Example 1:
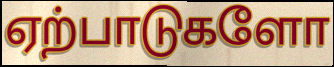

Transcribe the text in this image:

ஏற்பாடுகளோ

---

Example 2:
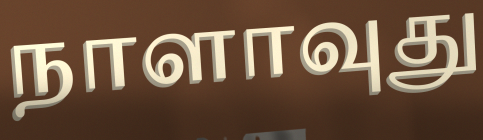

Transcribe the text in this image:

நாளாவுது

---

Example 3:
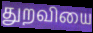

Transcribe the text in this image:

துறவியை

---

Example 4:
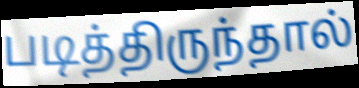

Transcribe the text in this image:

படித்திருந்தால்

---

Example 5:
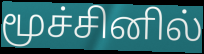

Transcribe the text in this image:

மூச்சினில்